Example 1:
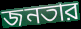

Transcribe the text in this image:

জনতার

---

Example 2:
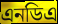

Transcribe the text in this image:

এনডিএ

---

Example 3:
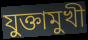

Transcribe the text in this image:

যুক্তামুখী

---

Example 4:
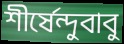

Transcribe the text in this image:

শীর্ষেন্দুবাবু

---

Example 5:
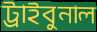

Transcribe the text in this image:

ট্রাইবুনাল